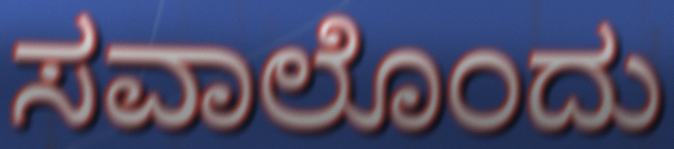
ಸವಾಲೊಂದು